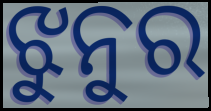
ଝୁନୁର